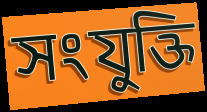
সংযুক্তি